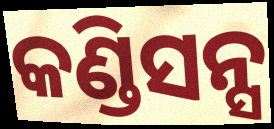
କଣ୍ଡିସନ୍ସ